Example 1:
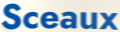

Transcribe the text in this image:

Sceaux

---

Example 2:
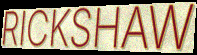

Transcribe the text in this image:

RICKSHAW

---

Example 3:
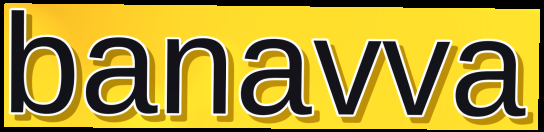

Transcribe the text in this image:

banavva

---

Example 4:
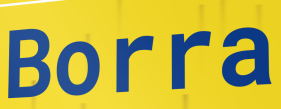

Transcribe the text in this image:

Borra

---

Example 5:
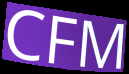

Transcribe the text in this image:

CFM